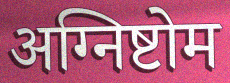
अग्निष्टोम